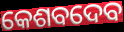
କେଶବଦେବ